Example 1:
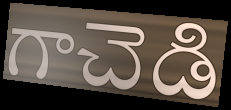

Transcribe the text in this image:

గాచెడి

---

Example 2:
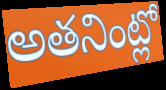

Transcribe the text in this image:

అతనింట్లో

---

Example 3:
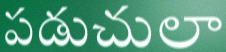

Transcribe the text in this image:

పడుచులా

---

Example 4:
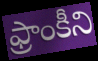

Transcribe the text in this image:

ఫ్రాంకీని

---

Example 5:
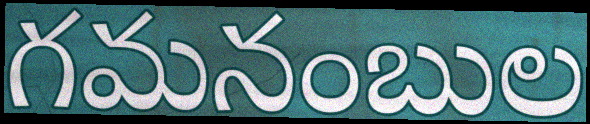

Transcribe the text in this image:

గమనంబుల